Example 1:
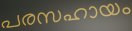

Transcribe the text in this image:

പരസഹായം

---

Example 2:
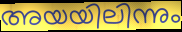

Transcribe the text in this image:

അയയിലിന്നും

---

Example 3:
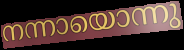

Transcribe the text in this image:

നന്നായൊന്നു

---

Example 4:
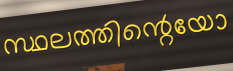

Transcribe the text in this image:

സ്ഥലത്തിന്റെയോ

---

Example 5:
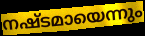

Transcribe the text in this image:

നഷ്ടമായെന്നും